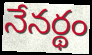
నేనర్థం